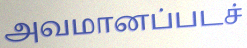
அவமானப்படச்